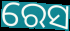
ରେସ